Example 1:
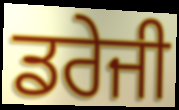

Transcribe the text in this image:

ਡਰੇਜੀ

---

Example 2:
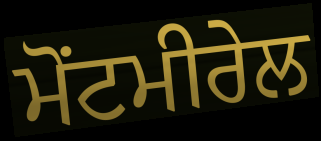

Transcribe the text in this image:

ਮੋਂਟਮੀਰੇਲ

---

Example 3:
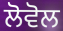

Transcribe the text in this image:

ਲੋਵੋਲ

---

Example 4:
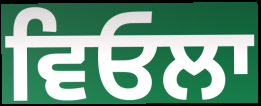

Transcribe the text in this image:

ਵਿਓਲਾ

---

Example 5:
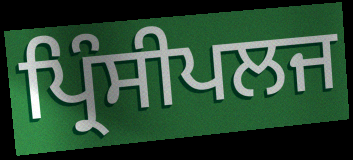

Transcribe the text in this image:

ਪ੍ਰਿੰਸੀਪਲਜ